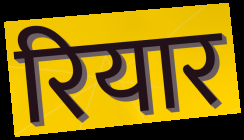
रियार